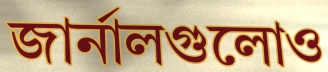
জার্নালগুলোও